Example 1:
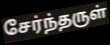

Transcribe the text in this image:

சேர்ந்தருள்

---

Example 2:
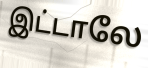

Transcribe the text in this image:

இட்டாலே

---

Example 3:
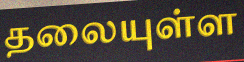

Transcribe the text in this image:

தலையுள்ள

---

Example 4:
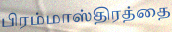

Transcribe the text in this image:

பிரம்மாஸ்திரத்தை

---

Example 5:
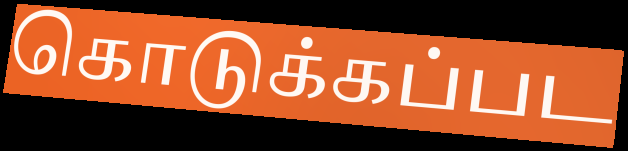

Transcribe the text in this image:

கொடுக்கப்பட